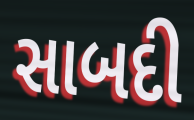
સાબદી